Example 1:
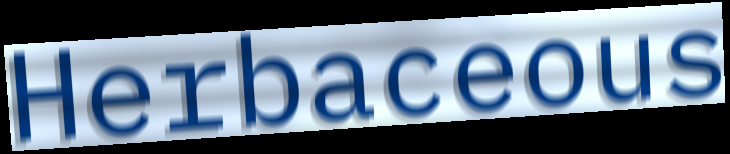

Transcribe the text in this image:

Herbaceous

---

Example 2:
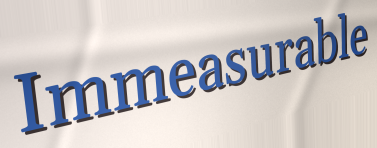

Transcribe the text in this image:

Immeasurable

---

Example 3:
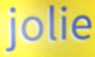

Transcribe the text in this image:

jolie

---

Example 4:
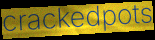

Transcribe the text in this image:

crackedpots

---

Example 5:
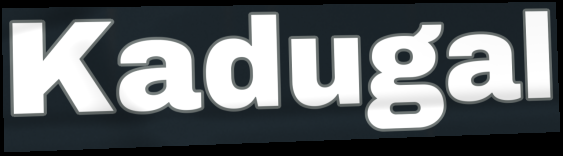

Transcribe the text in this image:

Kadugal